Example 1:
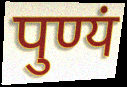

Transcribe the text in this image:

पुण्यं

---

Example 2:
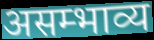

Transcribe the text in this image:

असम्भाव्य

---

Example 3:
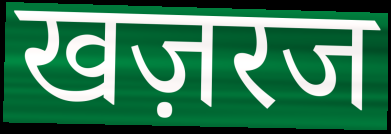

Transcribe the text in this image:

खज़रज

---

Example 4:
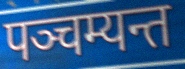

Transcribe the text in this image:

पञ्चम्यन्त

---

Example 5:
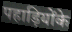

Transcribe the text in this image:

पहाड़ियोंके